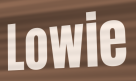
Lowie